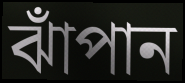
ঝাঁপান